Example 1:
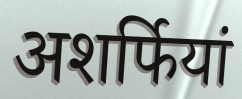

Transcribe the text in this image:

अशर्फियां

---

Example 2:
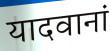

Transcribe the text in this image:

यादवानां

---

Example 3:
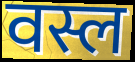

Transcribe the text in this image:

वस्ल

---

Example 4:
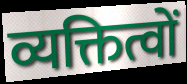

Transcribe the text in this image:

व्यक्तित्वों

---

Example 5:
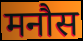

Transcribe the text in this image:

मनौस